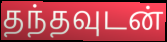
தந்தவுடன்